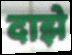
दाझे